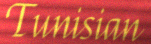
Tunisian